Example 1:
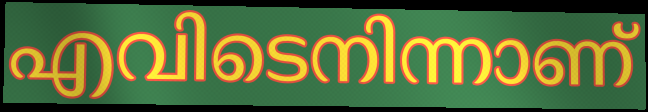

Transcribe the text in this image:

എവിടെനിന്നാണ്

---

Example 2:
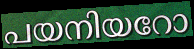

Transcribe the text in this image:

പയനിയറോ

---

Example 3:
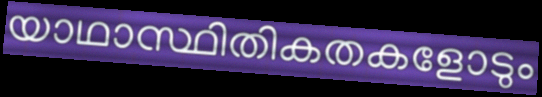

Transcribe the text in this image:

യാഥാസ്ഥിതികതകളോടും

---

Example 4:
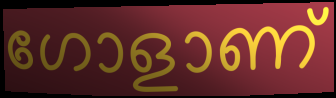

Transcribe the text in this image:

ഗോളാണ്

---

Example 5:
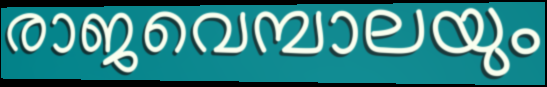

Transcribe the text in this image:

രാജവെമ്പാലയും